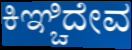
ಕಿಞ್ಚಿದೇವ